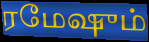
ரமேஷும்